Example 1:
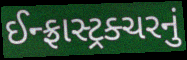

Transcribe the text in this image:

ઈન્ફ્રાસ્ટ્રક્ચરનું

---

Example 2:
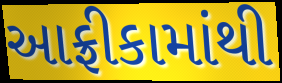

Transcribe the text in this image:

આફ્રીકામાંથી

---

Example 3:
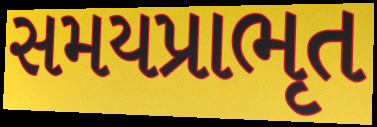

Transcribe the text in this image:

સમયપ્રાભૃત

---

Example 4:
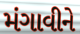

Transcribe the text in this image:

મંગાવીને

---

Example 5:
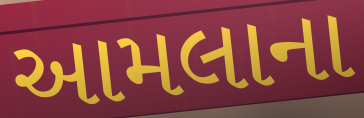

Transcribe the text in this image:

આમલાના